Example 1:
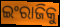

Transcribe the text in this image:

ଇଂରାଜିକୁ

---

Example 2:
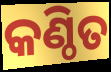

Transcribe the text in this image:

କଣ୍ଠିତ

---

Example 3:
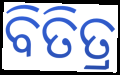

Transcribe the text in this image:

ବିତିତ୍ର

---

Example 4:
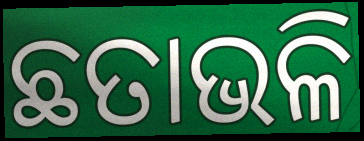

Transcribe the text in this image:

ଛତାଭଳି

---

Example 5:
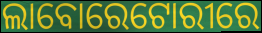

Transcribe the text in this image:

ଲାବୋରେଟୋରୀରେ